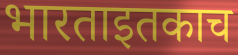
भारताइतकाच